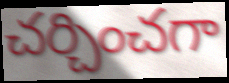
చర్చించగా